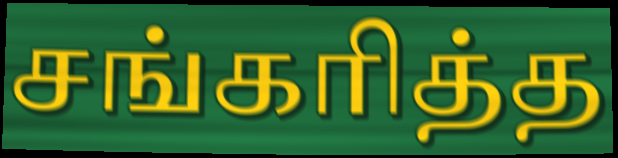
சங்கரித்த